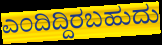
ಎಂದಿದ್ದಿರಬಹುದು